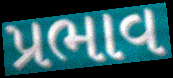
પ્રભાવ